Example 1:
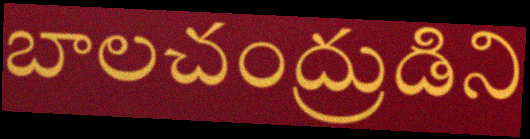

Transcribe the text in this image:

బాలచంద్రుడిని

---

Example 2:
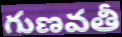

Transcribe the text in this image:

గుణవతీ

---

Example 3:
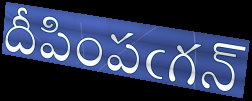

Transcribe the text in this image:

దీపింపఁగన్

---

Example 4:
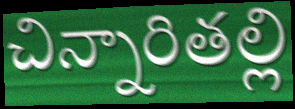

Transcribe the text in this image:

చిన్నారితల్లి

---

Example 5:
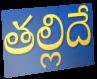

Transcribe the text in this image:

తల్లిదే